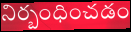
నిర్బంధించడం